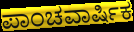
ಪಾಂಚವಾರ್ಷಿಕ